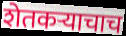
शेतकऱ्याचाच